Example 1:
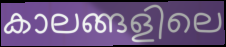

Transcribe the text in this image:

കാലങ്ങളിലെ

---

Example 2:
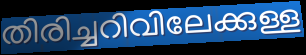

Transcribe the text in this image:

തിരിച്ചറിവിലേക്കുള്ള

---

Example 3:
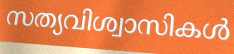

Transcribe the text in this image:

സത്യവിശ്വാസികൾ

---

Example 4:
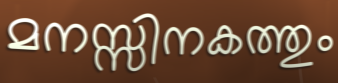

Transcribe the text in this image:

മനസ്സിനകത്തും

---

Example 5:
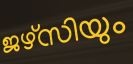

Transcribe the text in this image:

ജഴ്സിയും